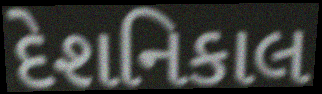
દેશનિકાલ